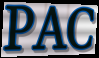
PAC